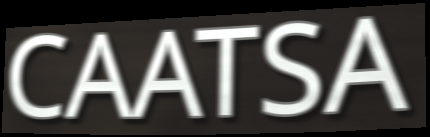
CAATSA